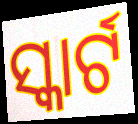
ସ୍କାର୍ଟ